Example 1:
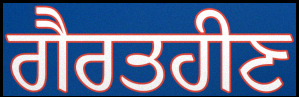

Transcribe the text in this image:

ਗੈਰਤਹੀਣ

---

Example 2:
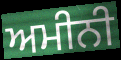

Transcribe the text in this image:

ਅਮੀਨੀ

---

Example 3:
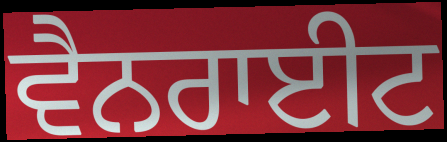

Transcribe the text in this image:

ਵੈਨਰਾਈਟ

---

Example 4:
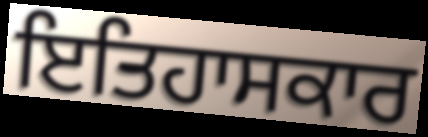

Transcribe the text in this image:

ਇਤਿਹਾਸਕਾਰ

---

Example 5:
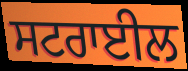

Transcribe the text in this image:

ਸਟਰਾਈਲ